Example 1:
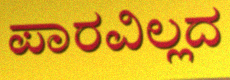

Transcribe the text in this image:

ಪಾರವಿಲ್ಲದ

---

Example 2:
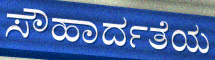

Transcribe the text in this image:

ಸೌಹಾರ್ದತೆಯ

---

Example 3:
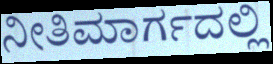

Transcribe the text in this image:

ನೀತಿಮಾರ್ಗದಲ್ಲಿ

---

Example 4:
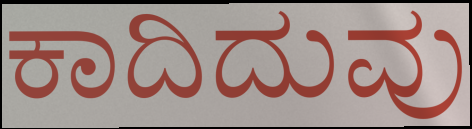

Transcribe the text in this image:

ಕಾದಿದುವು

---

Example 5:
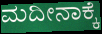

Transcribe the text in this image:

ಮದೀನಾಕ್ಕೆ